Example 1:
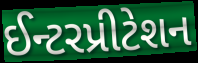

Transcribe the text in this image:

ઈન્ટરપ્રીટેશન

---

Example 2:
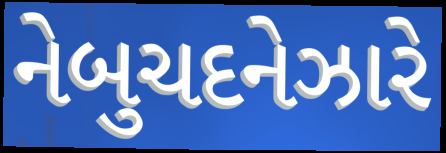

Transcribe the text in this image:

નેબુચદનેઝારે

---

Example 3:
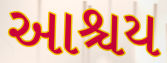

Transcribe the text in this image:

આશ્ચય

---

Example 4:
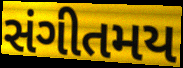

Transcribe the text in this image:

સંગીતમય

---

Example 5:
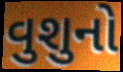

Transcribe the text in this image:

વુશુનો